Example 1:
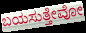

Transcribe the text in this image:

ಬಯಸುತ್ತೇವೋ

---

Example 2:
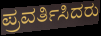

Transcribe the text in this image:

ಪ್ರವರ್ತಿಸಿದರು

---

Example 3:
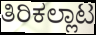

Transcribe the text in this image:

ತಿರಿಕಲ್ಲಾಟ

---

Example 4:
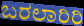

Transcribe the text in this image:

ಬರಲಾರಿರಿ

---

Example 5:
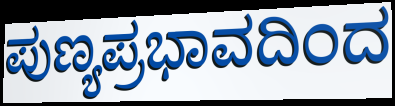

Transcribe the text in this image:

ಪುಣ್ಯಪ್ರಭಾವದಿಂದ